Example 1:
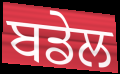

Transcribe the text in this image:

ਬਡੇਲ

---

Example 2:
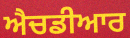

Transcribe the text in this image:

ਐਚਡੀਆਰ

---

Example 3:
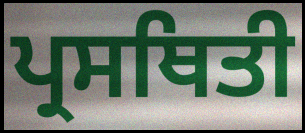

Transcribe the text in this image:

ਪ੍ਰਸਥਿਤੀ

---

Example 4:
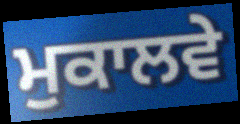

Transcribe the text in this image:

ਮੁਕਾਲਵੇ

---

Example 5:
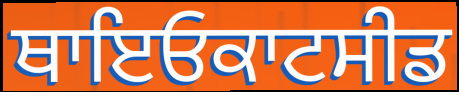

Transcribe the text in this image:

ਥਾਇਓਕਾਟਸੀਡ